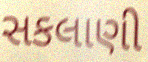
સકલાણી